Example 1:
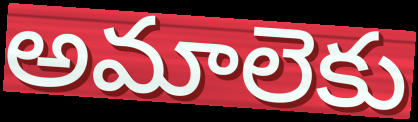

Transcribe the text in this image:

అమాలెకు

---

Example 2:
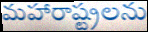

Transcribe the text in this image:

మహారాష్ట్రలను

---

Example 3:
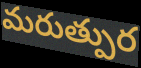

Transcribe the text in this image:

మరుత్పుర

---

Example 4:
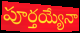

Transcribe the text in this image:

పూర్తయ్యేనా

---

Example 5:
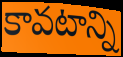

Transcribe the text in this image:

కావటాన్ని